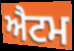
ਐਟਮ